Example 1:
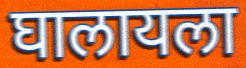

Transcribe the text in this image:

घालायला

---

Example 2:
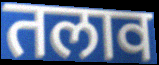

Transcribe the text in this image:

तलाव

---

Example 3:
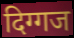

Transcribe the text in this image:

दिग्गज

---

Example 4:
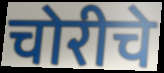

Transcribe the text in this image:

चोरीचे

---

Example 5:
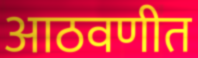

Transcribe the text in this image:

आठवणीत